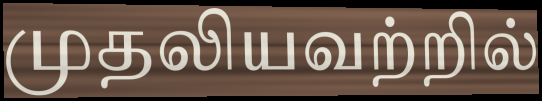
முதலியவற்றில்